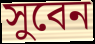
সুবেন